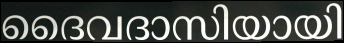
ദൈവദാസിയായി